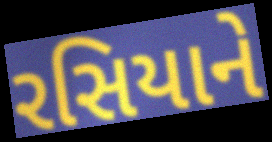
રસિયાને